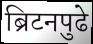
ब्रिटनपुढे